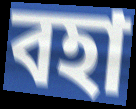
বহা